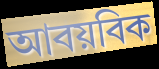
আবয়বিক